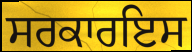
ਸਰਕਾਰਇਸ